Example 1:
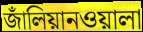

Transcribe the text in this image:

জাঁলিয়ানওয়ালা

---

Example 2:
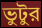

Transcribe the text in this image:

ভুটুর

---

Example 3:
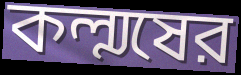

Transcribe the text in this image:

কল্মষের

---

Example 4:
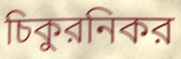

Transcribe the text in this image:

চিকুরনিকর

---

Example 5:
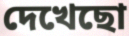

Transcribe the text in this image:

দেখেছো